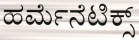
ಹರ್ಮೆನೆಟಿಕ್ಸ್